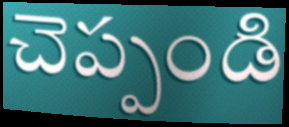
చెప్పండి